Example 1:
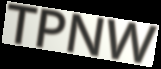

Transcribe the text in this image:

TPNW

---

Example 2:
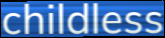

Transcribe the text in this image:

childless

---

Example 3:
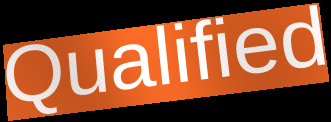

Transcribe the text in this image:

Qualified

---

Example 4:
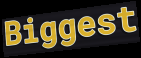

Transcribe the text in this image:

Biggest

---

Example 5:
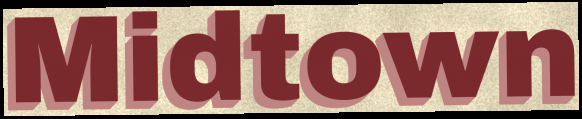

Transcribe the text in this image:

Midtown